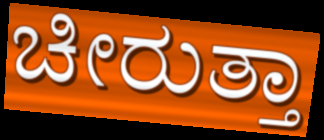
ಚೀರುತ್ತಾ